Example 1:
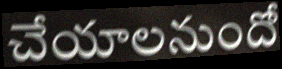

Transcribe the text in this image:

చేయాలనుందో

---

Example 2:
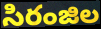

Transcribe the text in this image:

సిరంజిల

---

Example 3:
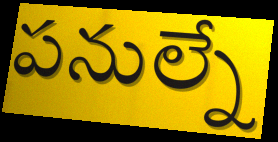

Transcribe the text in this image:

పనుల్నే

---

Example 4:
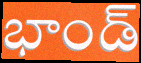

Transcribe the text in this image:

భాండ్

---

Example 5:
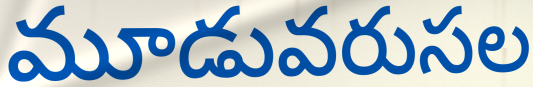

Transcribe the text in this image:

మూడువరుసల